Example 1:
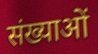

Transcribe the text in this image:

संख्याओं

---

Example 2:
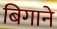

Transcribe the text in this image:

बिगाने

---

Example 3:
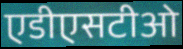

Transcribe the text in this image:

एडीएसटीओ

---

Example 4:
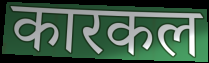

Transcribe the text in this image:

कारकल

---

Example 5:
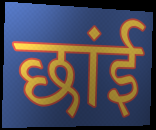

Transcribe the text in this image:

छांई